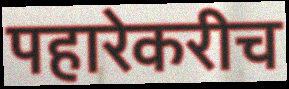
पहारेकरीच